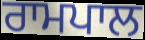
ਰਾਮਪਾਲ